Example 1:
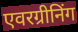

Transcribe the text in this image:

एवरग्रीनिंग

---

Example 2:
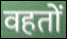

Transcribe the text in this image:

वहतों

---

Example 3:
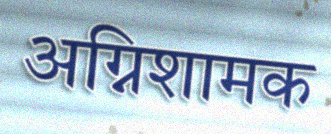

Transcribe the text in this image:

अग्निशामक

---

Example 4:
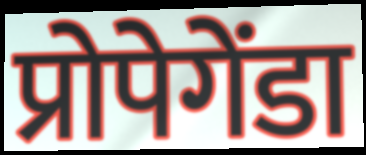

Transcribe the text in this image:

प्रोपेगेंडा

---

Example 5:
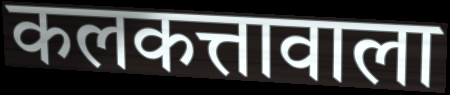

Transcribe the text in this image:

कलकत्तावाला